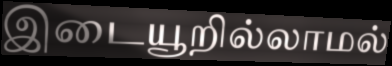
இடையூறில்லாமல்